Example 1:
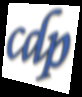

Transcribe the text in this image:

cdp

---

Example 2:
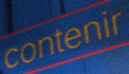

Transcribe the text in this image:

contenir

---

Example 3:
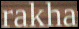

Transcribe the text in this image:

rakha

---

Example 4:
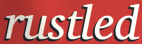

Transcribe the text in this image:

rustled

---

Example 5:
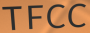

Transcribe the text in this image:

TFCC